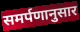
समर्पणानुसार